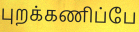
புறக்கணிப்பே